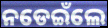
ନଡେଇଁଲେ